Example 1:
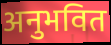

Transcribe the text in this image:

अनुभवित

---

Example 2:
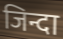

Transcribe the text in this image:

जिन्‍दा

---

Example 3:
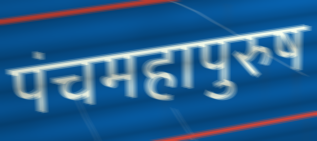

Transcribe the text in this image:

पंचमहापुरुष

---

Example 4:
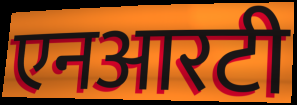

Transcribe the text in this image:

एनआरटी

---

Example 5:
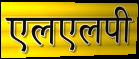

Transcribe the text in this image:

एलएलपी